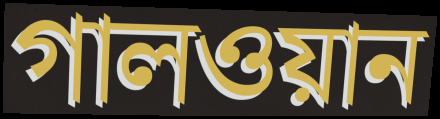
গালওয়ান